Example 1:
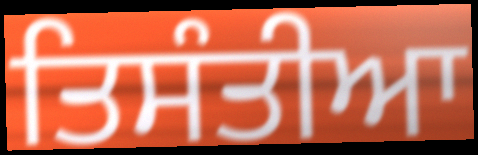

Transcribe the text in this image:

ਤਿਸੰਤੀਆ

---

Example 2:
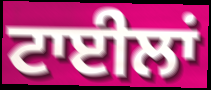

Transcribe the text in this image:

ਟਾਈਲਾਂ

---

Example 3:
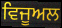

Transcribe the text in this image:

ਵਿਜੂਅਲ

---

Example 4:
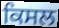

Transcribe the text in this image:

ਕਿਸਲ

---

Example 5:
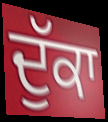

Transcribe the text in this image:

ਦੁੱਕਾ